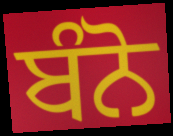
ਬੰਨੋ